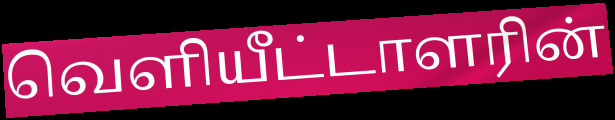
வெளியீட்டாளரின்